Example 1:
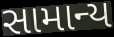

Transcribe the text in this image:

સામાન્ય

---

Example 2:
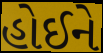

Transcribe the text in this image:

હોઈને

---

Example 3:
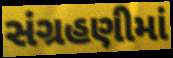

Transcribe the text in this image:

સંગ્રહણીમાં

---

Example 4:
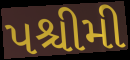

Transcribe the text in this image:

પશ્ચીમી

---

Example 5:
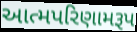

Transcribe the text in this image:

આત્મપરિણામરૂપ